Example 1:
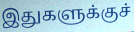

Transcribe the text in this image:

இதுகளுக்குச்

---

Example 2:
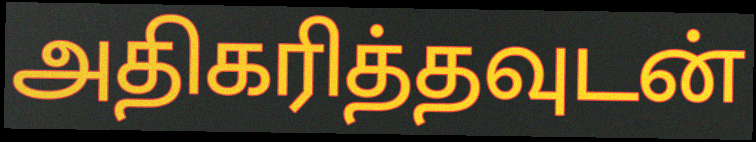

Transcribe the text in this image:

அதிகரித்தவுடன்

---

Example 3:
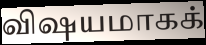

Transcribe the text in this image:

விஷயமாகக்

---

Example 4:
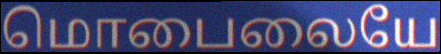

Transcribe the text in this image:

மொபைலையே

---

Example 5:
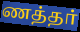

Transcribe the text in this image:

ணத்தர்